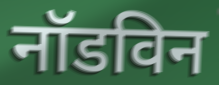
नॉडविन